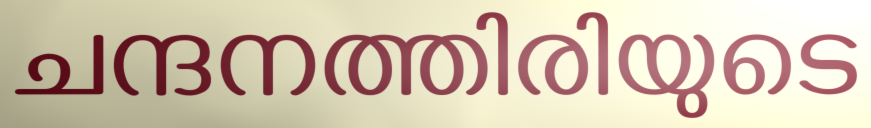
ചന്ദനത്തിരിയുടെ